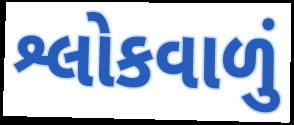
શ્લોકવાળું